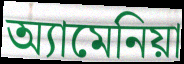
অ্যামেনিয়া